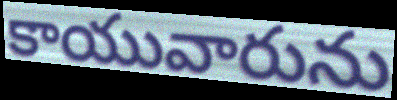
కాయువారును